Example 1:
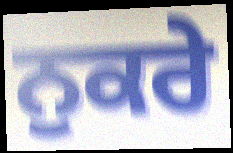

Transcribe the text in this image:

ਨੁਕਰੇ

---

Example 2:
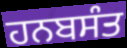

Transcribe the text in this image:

ਹਨਬਸੰਤ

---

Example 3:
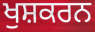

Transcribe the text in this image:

ਖੁਸ਼ਕਰਨ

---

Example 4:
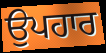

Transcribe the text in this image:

ਉਪਹਾਰ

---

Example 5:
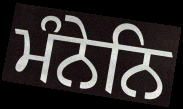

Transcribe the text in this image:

ਮੰਨੇਨਿ